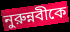
নুরুন্নবীকে